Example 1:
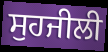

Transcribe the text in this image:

ਸੁਹਜੀਲੀ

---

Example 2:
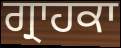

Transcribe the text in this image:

ਗ੍ਰਾਹਕਾ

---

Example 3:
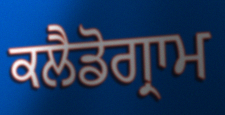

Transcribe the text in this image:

ਕਲੈਡੋਗ੍ਰਾਮ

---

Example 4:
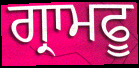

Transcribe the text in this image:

ਗ੍ਰਾਮਫੂ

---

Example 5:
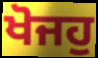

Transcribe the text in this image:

ਖੋਜਹੁ